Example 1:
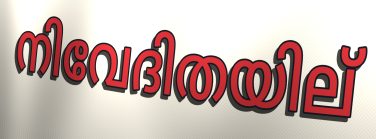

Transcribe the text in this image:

നിവേദിതയില്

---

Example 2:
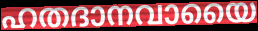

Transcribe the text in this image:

ഹതദാനവായൈ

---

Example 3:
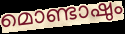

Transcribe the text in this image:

മൊണ്ടാഷും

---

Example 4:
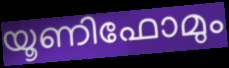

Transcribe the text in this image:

യൂണിഫോമും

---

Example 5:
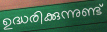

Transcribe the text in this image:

ഉദ്ധരിക്കുന്നുണ്ട്